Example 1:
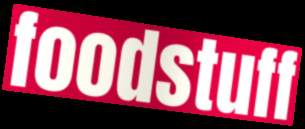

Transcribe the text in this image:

foodstuff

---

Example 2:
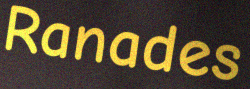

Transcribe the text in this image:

Ranades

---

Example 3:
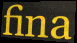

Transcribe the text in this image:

fina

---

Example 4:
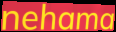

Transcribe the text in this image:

nehama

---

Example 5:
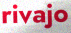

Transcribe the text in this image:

rivajo